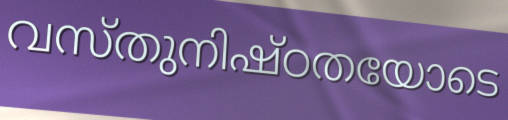
വസ്തുനിഷ്ഠതയോടെ